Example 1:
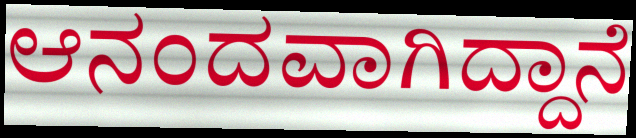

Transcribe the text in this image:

ಆನಂದವಾಗಿದ್ದಾನೆ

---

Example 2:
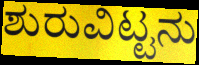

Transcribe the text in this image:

ಶುರುವಿಟ್ಟನು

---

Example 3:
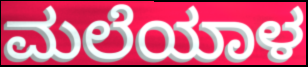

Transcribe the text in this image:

ಮಲೆಯಾಳ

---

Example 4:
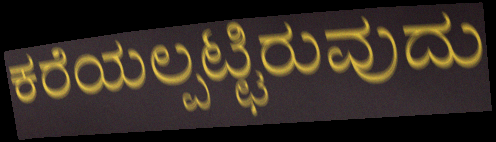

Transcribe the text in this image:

ಕರೆಯಲ್ಪಟ್ಟಿರುವುದು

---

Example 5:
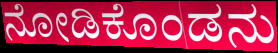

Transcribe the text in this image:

ನೋಡಿಕೊಂಡನು